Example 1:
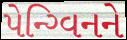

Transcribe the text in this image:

પેન્ગ્વિનને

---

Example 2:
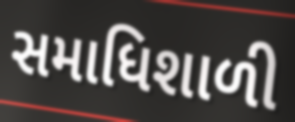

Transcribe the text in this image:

સમાધિશાળી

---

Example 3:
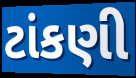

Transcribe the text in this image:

ટાંકણી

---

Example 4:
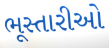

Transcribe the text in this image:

ભૂસ્તારીઓ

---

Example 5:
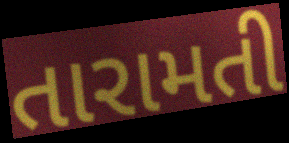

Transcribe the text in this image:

તારામતી